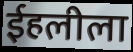
ईहलीला